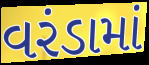
વરંડામાં